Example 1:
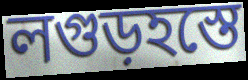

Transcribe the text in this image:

লগুড়হস্তে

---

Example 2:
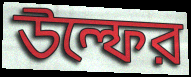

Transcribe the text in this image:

উল্ফের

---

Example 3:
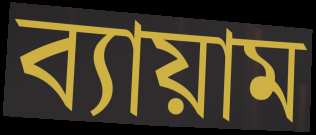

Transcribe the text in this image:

ব্যায়াম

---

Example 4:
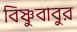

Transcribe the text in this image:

বিষ্ণুবাবুর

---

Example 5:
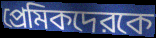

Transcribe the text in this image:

প্রেমিকদেরকে